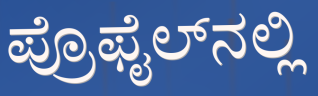
ಪ್ರೊಫೈಲ್‌ನಲ್ಲಿ